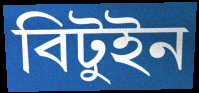
বিটুইন